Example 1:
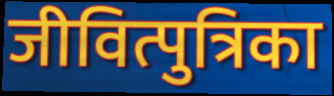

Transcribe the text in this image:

जीवित्पुत्रिका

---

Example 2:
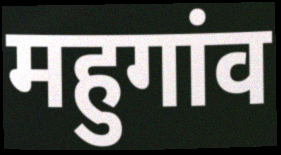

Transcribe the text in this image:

महुगांव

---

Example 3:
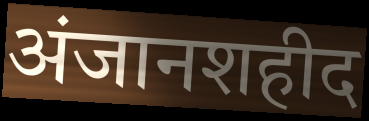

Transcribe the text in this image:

अंजानशहीद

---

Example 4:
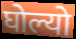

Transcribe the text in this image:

घोल्यो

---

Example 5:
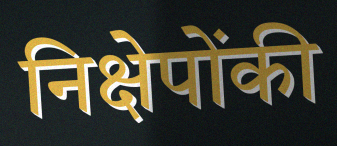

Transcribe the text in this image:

निक्षेपोंकी